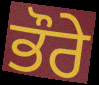
ਭੌਰੇ